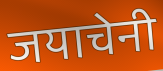
जयाचेनी